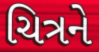
ચિત્રને